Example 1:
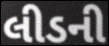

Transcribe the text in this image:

લીડની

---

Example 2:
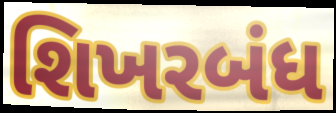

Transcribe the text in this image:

શિખરબંધ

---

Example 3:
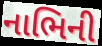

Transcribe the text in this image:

નાભિની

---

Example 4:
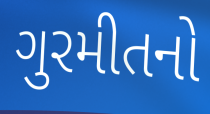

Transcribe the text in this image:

ગુરમીતનો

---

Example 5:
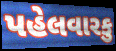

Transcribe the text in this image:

પહેલવારકુ